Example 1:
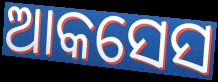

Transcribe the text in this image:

ଆକସେସ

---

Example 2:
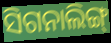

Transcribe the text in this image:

ସିଗନାଲିଙ୍ଗ୍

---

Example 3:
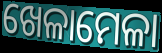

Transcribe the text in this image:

ଖେଳାମେଳା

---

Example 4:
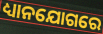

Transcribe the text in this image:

ଧ୍ୟାନଯୋଗରେ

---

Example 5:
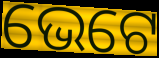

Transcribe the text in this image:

ଭେଟେ